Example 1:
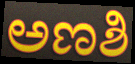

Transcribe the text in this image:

ಅಣಶಿ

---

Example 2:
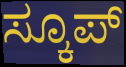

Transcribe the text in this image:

ಸ್ಕೂಪ್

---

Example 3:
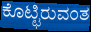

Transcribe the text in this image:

ಕೊಟ್ಟಿರುವಂತ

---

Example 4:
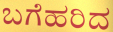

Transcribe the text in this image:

ಬಗೆಹರಿದ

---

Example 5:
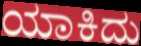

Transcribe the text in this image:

ಯಾಕಿದು